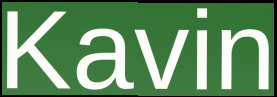
Kavin